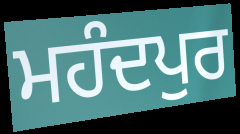
ਮਹੰਦਪੁਰ